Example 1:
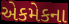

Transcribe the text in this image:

એકમેકના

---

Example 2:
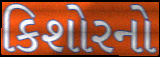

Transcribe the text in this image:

કિશોરનો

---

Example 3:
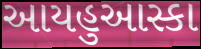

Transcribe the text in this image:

આયહુઆસ્કા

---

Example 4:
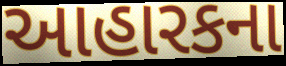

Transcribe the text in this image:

આહારકના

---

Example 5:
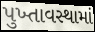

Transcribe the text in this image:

પુખ્તાવસ્થામાં